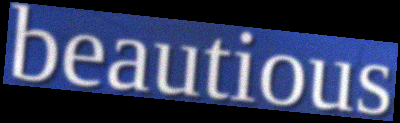
beautious